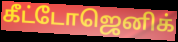
கீட்டோஜெனிக்